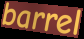
barrel